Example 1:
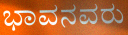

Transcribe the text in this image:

ಭಾವನವರು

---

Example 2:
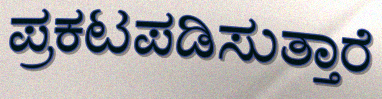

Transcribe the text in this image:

ಪ್ರಕಟಪಡಿಸುತ್ತಾರೆ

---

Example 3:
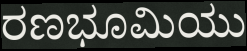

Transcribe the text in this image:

ರಣಭೂಮಿಯು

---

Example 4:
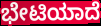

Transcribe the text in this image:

ಭೇಟಿಯಾದೆ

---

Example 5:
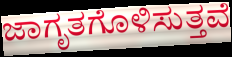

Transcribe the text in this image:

ಜಾಗೃತಗೊಳಿಸುತ್ತವೆ